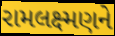
રામલક્ષ્મણને